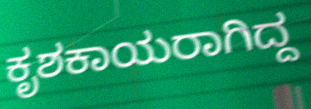
ಕೃಶಕಾಯರಾಗಿದ್ದ